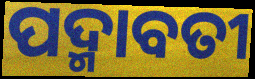
ପଦ୍ମାବତୀ